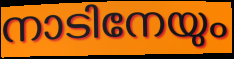
നാടിനേയും